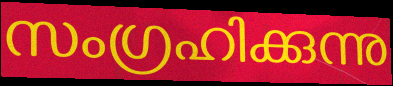
സംഗ്രഹിക്കുന്നു